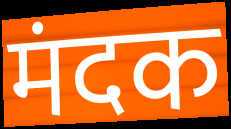
मंदक